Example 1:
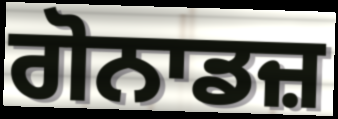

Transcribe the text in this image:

ਗੋਨਾਡਜ਼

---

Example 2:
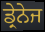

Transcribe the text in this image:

ਡ੍ਰੇਨੇਜ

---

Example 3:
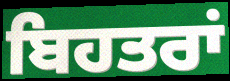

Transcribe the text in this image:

ਬਿਹਤਰਾਂ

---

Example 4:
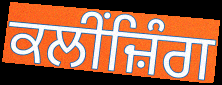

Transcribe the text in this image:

ਕਲੀਂਜ਼ਿੰਗ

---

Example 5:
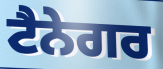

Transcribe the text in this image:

ਟੈਨੇਗਰ